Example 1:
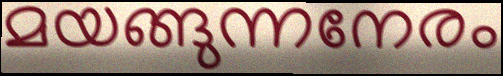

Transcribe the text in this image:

മയങ്ങുന്നനേരം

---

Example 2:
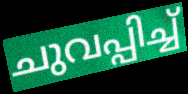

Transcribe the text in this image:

ചുവപ്പിച്ച്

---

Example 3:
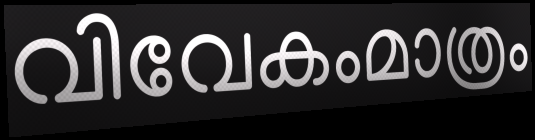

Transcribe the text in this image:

വിവേകംമാത്രം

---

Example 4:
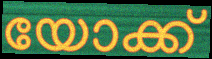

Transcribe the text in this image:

യോക്ക്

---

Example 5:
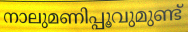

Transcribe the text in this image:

നാലുമണിപ്പൂവുമുണ്ട്